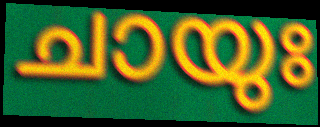
ചായുഃ